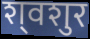
श्वशुर